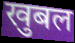
खुबल